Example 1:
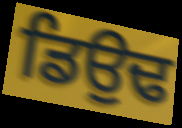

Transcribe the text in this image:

ਡਿਉਢ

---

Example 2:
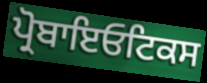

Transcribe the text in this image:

ਪ੍ਰੋਬਾਇਓਟਿਕਸ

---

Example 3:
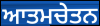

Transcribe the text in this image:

ਆਤਮਚੇਤਨ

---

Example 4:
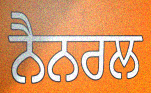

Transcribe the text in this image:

ਨੈਨਰਲ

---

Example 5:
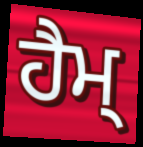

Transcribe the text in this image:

ਹੈਮ੍